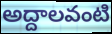
అద్దాలవంటి